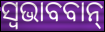
ସ୍ଵଭାବବାନ୍